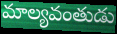
మాల్యవంతుడు